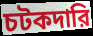
চটকদারি